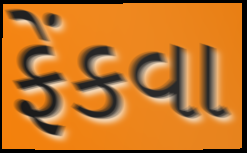
ફેંકવા